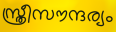
സ്ത്രീസൗന്ദര്യം